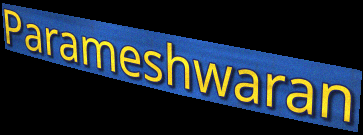
Parameshwaran